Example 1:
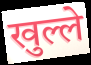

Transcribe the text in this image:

खुल्ले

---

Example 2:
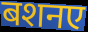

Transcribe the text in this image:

बशनए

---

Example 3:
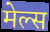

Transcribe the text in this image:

मेल्स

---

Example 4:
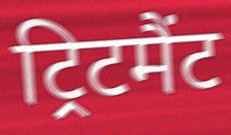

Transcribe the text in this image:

ट्रिटमैंट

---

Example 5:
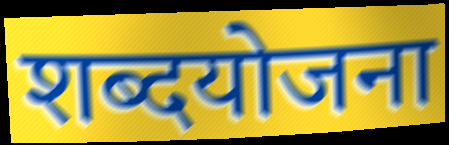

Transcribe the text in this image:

शब्दयोजना